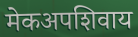
मेकअपशिवाय